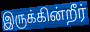
இருக்கின்றீர்